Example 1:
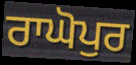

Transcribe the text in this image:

ਰਾਘੋਪੁਰ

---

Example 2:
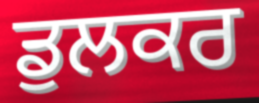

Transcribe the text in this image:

ਡੁਲਕਰ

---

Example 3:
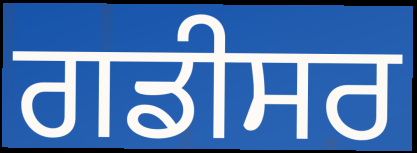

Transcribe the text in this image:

ਗਡੀਸਰ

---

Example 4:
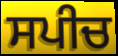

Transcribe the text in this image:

ਸਪੀਚ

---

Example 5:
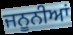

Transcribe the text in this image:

ਜਨੂਨੀਆਂ